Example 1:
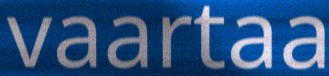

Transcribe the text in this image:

vaartaa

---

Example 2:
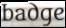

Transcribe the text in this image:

badge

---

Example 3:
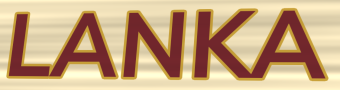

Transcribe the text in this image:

LANKA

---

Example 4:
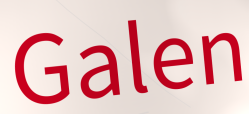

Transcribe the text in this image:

Galen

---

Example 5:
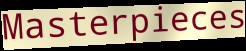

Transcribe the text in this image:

Masterpieces